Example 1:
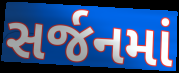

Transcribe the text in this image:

સર્જનમાં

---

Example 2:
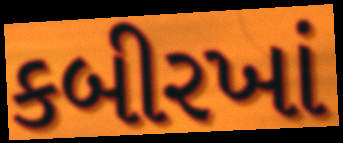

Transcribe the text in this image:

કબીરખાં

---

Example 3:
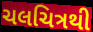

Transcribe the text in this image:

ચલચિત્રથી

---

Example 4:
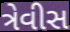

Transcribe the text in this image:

ત્રેવીસ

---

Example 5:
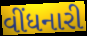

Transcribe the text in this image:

વીંધનારી